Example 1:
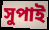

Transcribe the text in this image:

সুপাই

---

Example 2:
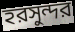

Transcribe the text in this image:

হরসুন্দর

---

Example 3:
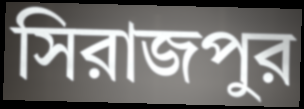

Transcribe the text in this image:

সিরাজপুর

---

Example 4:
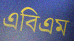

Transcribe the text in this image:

এবিএম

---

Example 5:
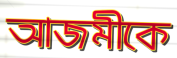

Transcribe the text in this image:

আজমীকে